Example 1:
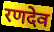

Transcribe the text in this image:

रणदेव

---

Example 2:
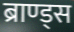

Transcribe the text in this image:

ब्राण्‍ड्स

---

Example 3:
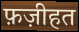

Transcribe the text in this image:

फ़ज़ीहत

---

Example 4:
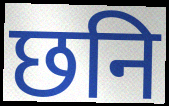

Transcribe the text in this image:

छनि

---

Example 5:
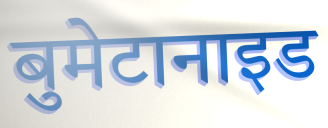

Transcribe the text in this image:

बुमेटानाइड